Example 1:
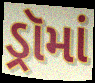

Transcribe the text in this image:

ડ્રૉમાં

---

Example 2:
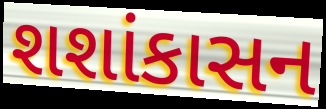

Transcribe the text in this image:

શશાંકાસન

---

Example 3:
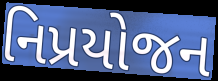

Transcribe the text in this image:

નિપ્રયોજન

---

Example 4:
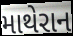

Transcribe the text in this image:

માથેરાન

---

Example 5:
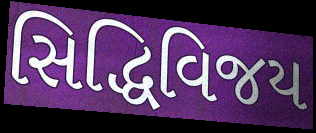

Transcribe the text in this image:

સિદ્ધિવિજય